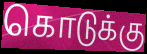
கொடுக்கு